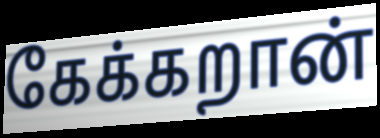
கேக்கறான்